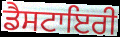
ਡੈਸਟਾਇਰੀ